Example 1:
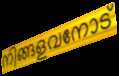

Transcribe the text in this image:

നിങ്ങളവനോട്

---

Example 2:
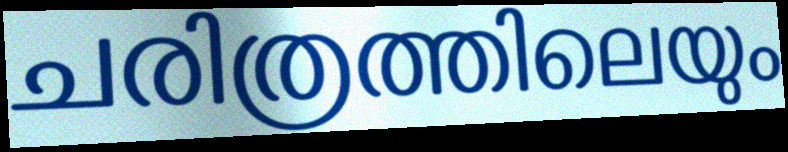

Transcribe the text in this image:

ചരിത്രത്തിലെയും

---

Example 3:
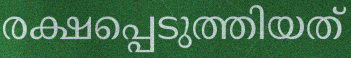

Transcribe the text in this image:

രക്ഷപ്പെടുത്തിയത്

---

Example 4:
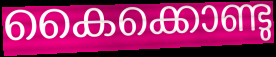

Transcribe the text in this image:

കൈക്കൊണ്ടു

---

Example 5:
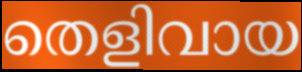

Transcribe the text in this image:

തെളിവായ